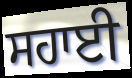
ਸਹਾਈ